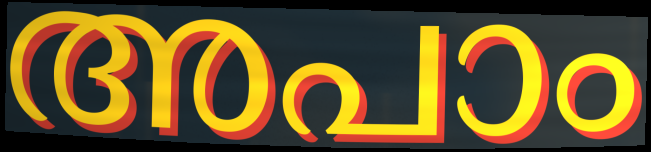
അപാം